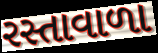
રસ્તાવાળા